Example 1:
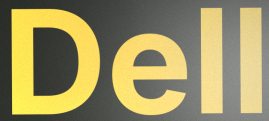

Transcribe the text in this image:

Dell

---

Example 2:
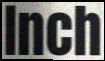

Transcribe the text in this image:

Inch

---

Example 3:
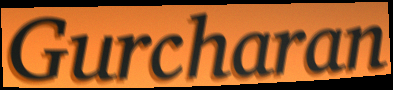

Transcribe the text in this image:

Gurcharan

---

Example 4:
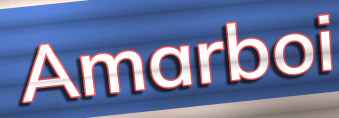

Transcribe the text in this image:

Amarboi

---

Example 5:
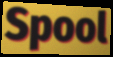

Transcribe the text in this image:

Spool